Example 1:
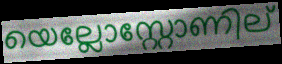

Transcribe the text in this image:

യെല്ലോസ്റ്റോണില്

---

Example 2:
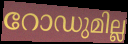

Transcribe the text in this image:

റോഡുമില്ല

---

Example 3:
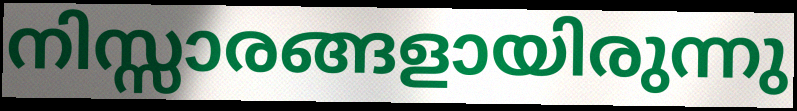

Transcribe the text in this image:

നിസ്സാരങ്ങളായിരുന്നു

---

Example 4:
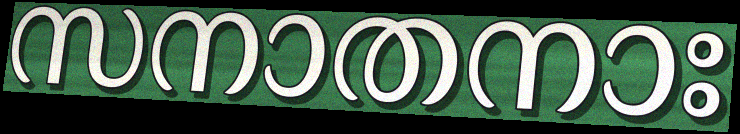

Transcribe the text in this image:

സനാതനാഃ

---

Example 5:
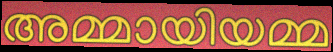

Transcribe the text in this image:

അമ്മായിയമ്മ